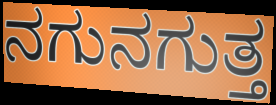
ನಗುನಗುತ್ತ